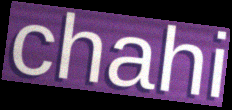
chahi